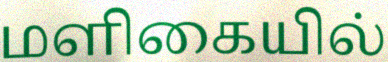
மளிகையில்